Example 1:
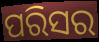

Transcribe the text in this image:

ପରିସର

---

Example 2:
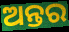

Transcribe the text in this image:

ଅନ୍ତର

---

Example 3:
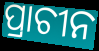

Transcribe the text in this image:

ପ୍ରାଚୀନ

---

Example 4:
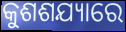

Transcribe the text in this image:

କୁଶଶଯ୍ୟାରେ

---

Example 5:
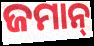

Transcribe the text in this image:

ଜମାନ୍